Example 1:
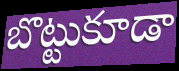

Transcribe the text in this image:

బొట్టుకూడా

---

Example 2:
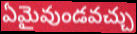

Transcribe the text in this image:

ఏమైవుండవచ్చు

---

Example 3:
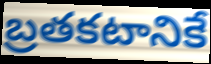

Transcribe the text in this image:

బ్రతకటానికే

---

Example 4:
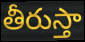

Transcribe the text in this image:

తీరుస్తా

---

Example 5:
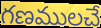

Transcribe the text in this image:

గణములచే